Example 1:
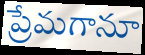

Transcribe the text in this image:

ప్రేమగానూ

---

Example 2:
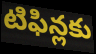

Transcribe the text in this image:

టిఫిన్లకు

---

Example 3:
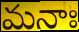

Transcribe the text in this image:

మనాః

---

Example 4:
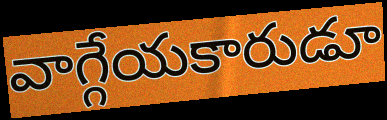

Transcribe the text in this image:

వాగ్గేయకారుడూ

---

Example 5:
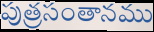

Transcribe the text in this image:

పుత్రసంతానము